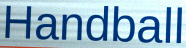
Handball